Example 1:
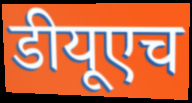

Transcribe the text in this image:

डीयूएच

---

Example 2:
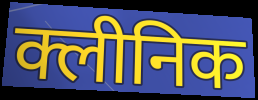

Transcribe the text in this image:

क्‍लीनिक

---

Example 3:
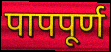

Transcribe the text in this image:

पापपूर्ण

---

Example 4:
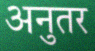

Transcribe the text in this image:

अनुतर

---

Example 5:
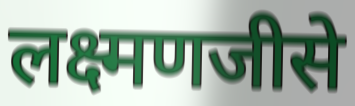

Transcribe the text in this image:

लक्ष्मणजीसे